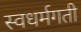
स्वधर्मगती